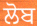
ਲੋਬ